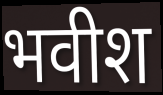
भवीश